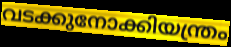
വടക്കുനോക്കിയന്ത്രം